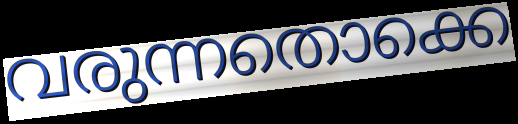
വരുന്നതൊക്കെ